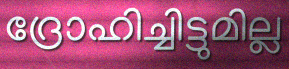
ദ്രോഹിച്ചിട്ടുമില്ല